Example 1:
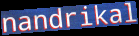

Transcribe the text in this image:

nandrikal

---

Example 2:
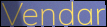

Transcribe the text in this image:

Vendar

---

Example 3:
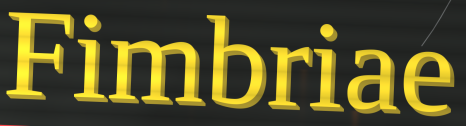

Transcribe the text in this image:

Fimbriae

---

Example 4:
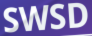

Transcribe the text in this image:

SWSD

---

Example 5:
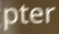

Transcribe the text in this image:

pter